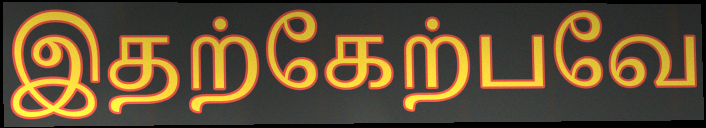
இதற்கேற்பவே